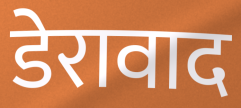
डेरावाद